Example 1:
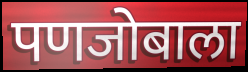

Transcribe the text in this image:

पणजोबाला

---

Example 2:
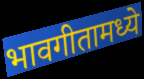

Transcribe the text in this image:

भावगीतामध्ये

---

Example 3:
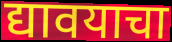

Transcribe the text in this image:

द्यावयाचा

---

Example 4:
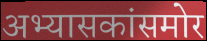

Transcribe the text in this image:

अभ्यासकांसमोर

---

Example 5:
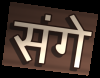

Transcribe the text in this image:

संगे